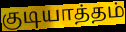
குடியாத்தம்